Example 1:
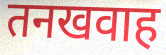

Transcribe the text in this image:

तनखवाह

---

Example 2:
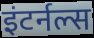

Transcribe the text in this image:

इंटर्नल्स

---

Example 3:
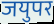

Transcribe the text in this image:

जयुपर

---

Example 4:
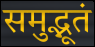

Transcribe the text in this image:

समुद्भूतं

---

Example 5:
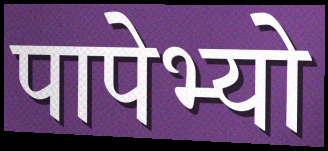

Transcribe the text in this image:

पापेभ्यो